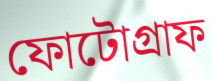
ফোটোগ্রাফ